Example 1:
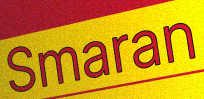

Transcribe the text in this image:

Smaran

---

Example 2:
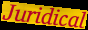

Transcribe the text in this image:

Juridical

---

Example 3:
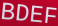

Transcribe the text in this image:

BDEF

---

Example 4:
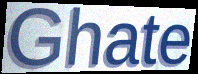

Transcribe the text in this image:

Ghate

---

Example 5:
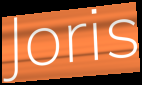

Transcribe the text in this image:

Joris